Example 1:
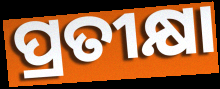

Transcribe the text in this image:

ପ୍ରତୀକ୍ଷା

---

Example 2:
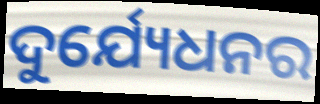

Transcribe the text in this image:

ଦୁର୍ଯ୍ୟେଧନର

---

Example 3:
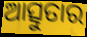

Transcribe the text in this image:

ଆତ୍ସୁତାର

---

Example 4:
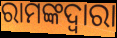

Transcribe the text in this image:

ରାମଙ୍କଦ୍ଵାରା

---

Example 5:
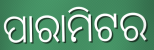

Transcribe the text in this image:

ପାରାମିଟର